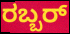
ರಬ್ಬರ್